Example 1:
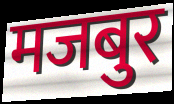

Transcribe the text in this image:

मजबुर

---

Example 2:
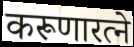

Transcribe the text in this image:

करूणारत्ने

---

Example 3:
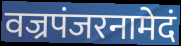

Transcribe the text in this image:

वज्रपंजरनामेदं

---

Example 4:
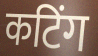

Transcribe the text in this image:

कटिंग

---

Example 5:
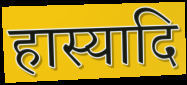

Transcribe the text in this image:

हास्यादि